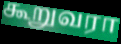
கூறுவரா